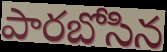
పారబోసిన